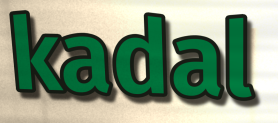
kadal